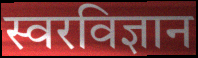
स्वरविज्ञान